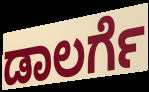
ಡಾಲರ್ಗೆ